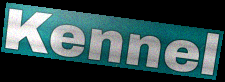
Kennel